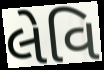
લેવિ